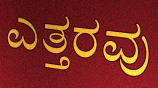
ಎತ್ತರವು